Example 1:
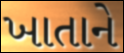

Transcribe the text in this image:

ખાતાને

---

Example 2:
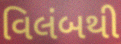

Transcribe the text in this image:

વિલંબથી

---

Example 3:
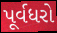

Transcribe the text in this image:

પૂર્વધરો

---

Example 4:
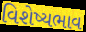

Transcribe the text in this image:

વિશેષ્યભાવ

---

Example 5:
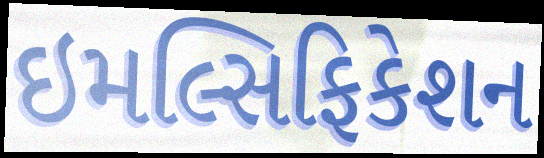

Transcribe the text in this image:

ઇમલ્સિફિકેશન